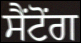
ਸੈਂਟੋਂਗ